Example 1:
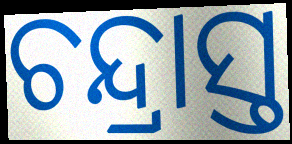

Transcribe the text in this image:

ଚନ୍ଦ୍ରାସ୍ତ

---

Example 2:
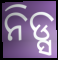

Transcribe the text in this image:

ନିଡ୍ସ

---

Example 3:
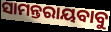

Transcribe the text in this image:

ସାମନ୍ତରାୟବାବୁ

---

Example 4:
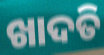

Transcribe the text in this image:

ଖାଦତି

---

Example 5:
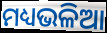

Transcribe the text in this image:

ମଧ୍ୟଭଳିଆ